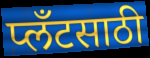
प्लँटसाठी